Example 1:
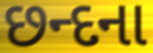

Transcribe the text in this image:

છન્દના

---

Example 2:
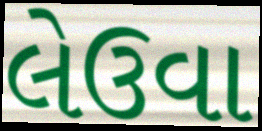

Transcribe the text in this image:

લેઉવા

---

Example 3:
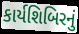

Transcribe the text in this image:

કાર્યશિબિરનું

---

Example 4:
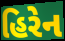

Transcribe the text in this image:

હિરેન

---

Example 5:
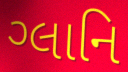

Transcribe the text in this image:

ગ્લાનિ